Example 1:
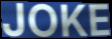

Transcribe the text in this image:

JOKE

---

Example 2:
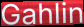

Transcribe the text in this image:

Gahlin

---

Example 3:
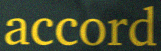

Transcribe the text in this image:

accord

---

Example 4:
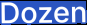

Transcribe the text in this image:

Dozen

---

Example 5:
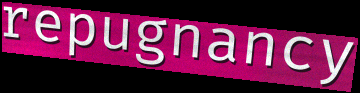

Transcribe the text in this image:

repugnancy